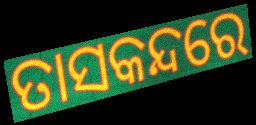
ତାସକନ୍ଦରେ